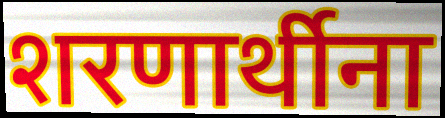
शरणार्थीना